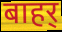
बाहर्